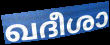
ഖദീശാ